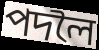
পদলৈ